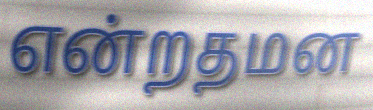
என்றதமன